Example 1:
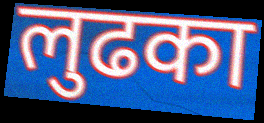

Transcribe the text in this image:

लुढका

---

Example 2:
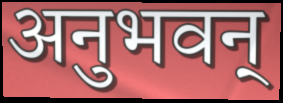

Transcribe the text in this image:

अनुभवन्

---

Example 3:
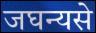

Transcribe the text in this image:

जघन्यसे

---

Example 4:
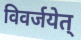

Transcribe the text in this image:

विवर्जयेत्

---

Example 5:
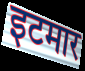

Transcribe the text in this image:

इटमार